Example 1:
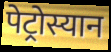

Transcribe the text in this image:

पेट्रोस्यान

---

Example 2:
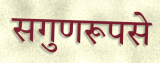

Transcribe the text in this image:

सगुणरूपसे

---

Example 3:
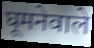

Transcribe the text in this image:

घूमनेवाले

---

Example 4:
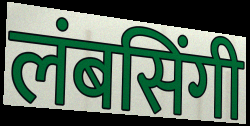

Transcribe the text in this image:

लंबसिंगी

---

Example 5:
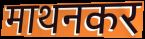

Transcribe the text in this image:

माथनकर